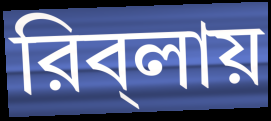
রিব্‌লায়